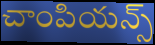
చాంపియన్స్